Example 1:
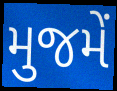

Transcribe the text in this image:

મુજમેં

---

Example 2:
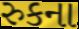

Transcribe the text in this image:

રુકના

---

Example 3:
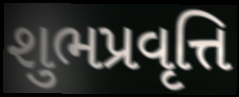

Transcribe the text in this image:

શુભપ્રવૃત્તિ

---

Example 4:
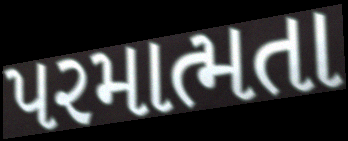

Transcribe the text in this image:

પરમાત્મતા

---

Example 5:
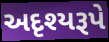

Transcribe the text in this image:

અદૃશ્યરૂપે